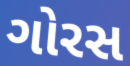
ગોરસ